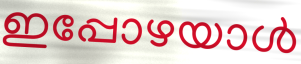
ഇപ്പോഴയാൾ